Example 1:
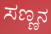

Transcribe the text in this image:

ಸಣ್ಣನ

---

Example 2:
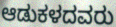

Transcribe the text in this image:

ಆಡುಕಳದವರು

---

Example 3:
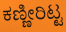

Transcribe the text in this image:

ಕಣ್ಣೀರಿಟ್ಟ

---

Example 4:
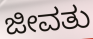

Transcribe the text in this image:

ಜೀವತು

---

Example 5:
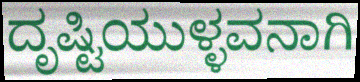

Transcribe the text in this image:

ದೃಷ್ಟಿಯುಳ್ಳವನಾಗಿ